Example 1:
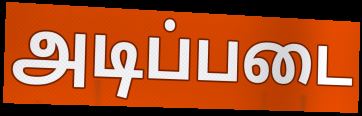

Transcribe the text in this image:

அடிப்படை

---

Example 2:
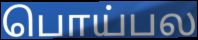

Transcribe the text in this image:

பொய்பல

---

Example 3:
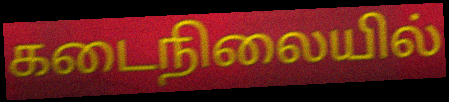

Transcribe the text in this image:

கடைநிலையில்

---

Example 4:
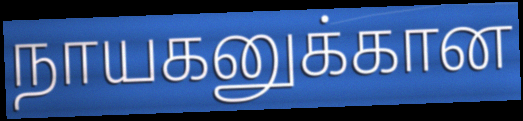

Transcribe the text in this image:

நாயகனுக்கான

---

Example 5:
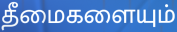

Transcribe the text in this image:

தீமைகளையும்